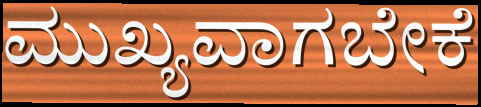
ಮುಖ್ಯವಾಗಬೇಕೆ